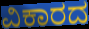
ವಿಕಾರದ